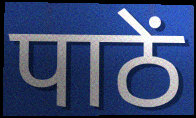
पाठें